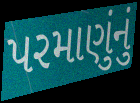
પરમાણુંનું